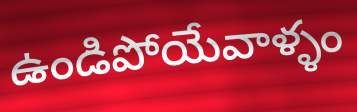
ఉండిపోయేవాళ్ళం